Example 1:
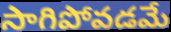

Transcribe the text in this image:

సాగిపోవడమే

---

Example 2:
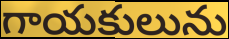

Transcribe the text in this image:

గాయకులును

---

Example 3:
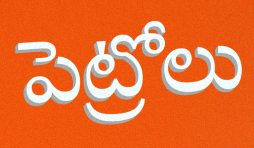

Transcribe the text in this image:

పెట్రోలు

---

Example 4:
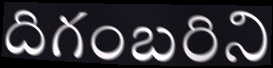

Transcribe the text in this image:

దిగంబరిని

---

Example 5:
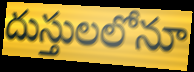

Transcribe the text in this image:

దుస్తులలోనూ